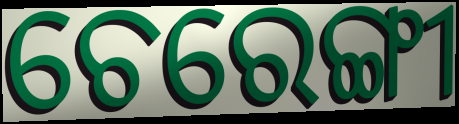
ଚେରେଙ୍ଗୀ